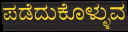
ಪಡೆದುಕೊಳ್ಳುವ